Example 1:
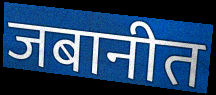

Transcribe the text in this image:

जबानीत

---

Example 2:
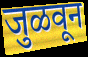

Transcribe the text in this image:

जुळवून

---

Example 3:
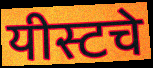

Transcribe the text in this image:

यीस्टचे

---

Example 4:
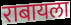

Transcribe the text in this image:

राबायला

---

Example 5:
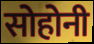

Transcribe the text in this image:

सोहोनी